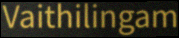
Vaithilingam